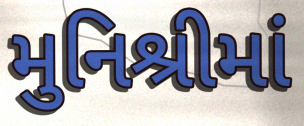
મુનિશ્રીમાં